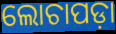
ଲୋଚାପଡ଼ା